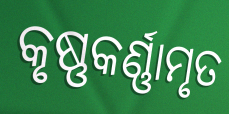
କୃଷ୍ଣକର୍ଣ୍ଣାମୃତ